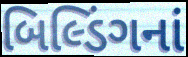
બિલ્ડિંગનાં